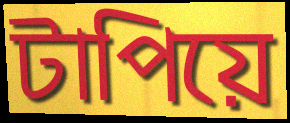
টাপিয়ে